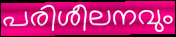
പരിശീലനവും